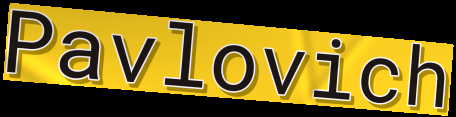
Pavlovich